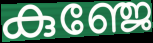
കുഞ്ജേ